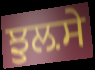
ਝੁਲ਼ਸੇ